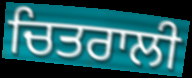
ਚਿਤਰਾਲੀ